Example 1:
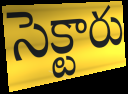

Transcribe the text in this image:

సెక్టారు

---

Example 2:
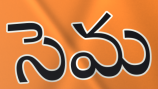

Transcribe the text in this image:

సెమ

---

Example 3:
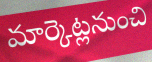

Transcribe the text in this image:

మార్కెట్లనుంచి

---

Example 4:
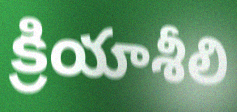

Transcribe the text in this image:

క్రియాశీలి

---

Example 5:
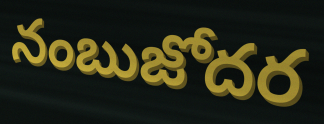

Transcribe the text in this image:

నంబుజోదర